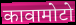
कावामोटो